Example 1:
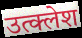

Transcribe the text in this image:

उत्क्लेश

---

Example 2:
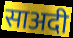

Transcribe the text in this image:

साअदी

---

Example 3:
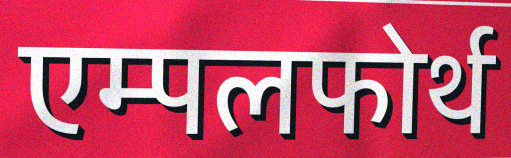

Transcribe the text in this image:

एम्पलफोर्थ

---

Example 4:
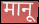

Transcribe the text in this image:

मानू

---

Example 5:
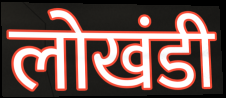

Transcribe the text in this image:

लोखंडी